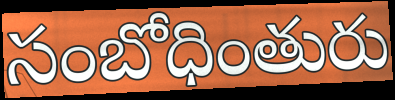
సంబోధింతురు